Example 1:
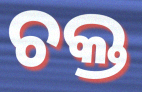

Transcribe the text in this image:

ଚକ୍ତ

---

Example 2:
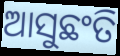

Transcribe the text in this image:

ଆସୁଛଂତି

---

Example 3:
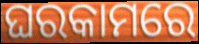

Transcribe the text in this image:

ଘରକାମରେ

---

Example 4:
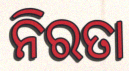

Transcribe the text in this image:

ନିରତା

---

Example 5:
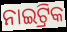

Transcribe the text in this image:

ନାଇଟ୍ରିକ